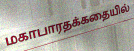
மகாபாரதக்கதையில்